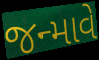
જન્માવે